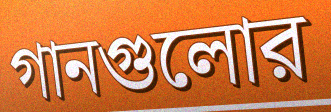
গানগুলোর